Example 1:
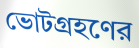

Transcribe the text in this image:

ভোটগ্রহণের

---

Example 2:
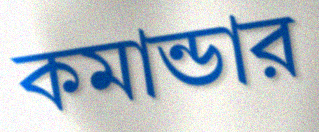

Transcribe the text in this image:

কমান্ডার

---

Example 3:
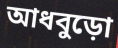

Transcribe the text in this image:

আধবুড়ো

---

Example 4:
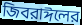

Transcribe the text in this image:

জিবরাঈলের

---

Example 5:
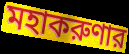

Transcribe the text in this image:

মহাকরুণার